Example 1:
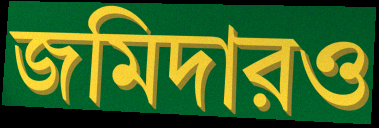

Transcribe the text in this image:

জমিদারও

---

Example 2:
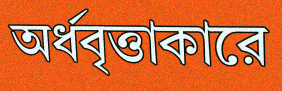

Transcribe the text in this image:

অর্ধবৃত্তাকারে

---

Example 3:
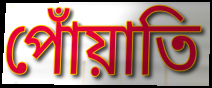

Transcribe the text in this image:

পোঁয়াতি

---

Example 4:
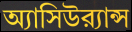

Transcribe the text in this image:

অ্যাসিউর‍্যান্স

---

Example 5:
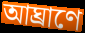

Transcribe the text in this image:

আঘ্রাণে